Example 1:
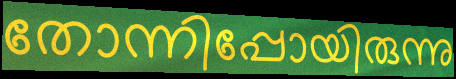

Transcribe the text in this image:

തോന്നിപ്പോയിരുന്നു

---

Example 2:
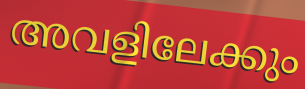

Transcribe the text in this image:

അവളിലേക്കും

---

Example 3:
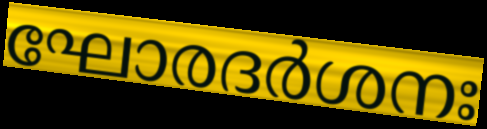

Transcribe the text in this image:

ഘോരദർശനഃ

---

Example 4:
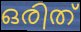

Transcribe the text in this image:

ഒരിത്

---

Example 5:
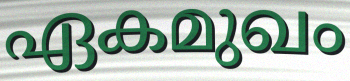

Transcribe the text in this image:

ഏകമുഖം